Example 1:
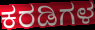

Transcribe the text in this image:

ಕರಡಿಗಳ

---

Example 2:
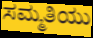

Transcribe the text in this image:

ಸಮ್ಮತಿಯು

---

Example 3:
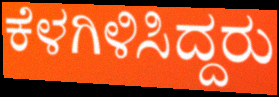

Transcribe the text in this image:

ಕೆಳಗಿಳಿಸಿದ್ದರು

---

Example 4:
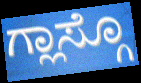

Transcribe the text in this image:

ಗ್ಲಾಸ್ಗೊ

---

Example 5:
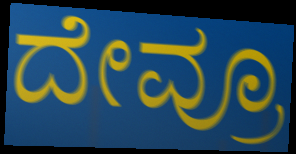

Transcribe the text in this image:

ದೇವ್ರೂ